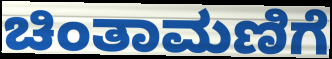
ಚಿಂತಾಮಣಿಗೆ